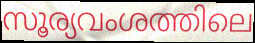
സൂര്യവംശത്തിലെ